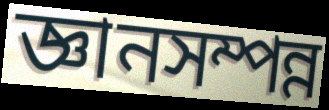
জ্ঞানসম্পন্ন